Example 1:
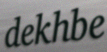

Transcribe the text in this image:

dekhbe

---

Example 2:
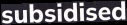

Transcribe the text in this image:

subsidised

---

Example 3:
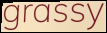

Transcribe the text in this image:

grassy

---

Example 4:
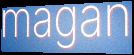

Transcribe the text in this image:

magan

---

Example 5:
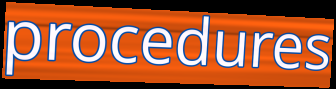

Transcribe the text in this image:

procedures